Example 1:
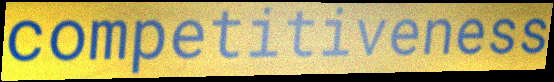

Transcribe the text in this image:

competitiveness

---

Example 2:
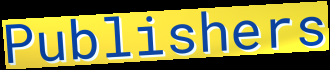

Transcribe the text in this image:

Publishers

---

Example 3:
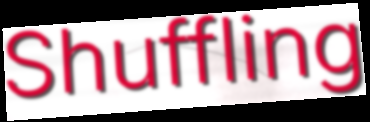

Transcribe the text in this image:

Shuffling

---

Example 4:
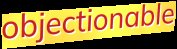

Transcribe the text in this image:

objectionable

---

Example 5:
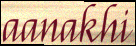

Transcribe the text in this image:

aanakhi